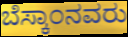
ಬೆಸ್ಕಾಂನವರು